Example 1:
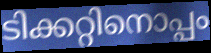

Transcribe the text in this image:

ടിക്കറ്റിനൊപ്പം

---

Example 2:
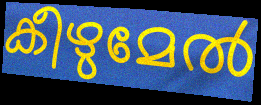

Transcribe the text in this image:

കീഴുമേൽ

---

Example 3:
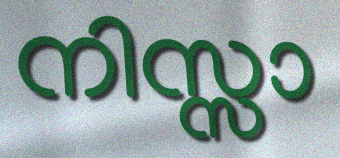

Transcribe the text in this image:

നിസ്സാ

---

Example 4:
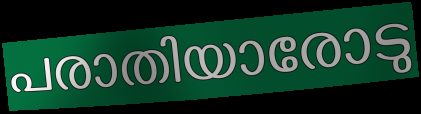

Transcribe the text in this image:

പരാതിയാരോടു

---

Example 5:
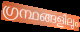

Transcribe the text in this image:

ഗ്രന്ഥങ്ങളിലും